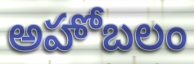
అహోబలం